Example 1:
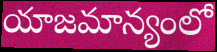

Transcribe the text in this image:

యాజమాన్యంలో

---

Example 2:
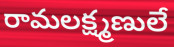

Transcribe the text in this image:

రామలక్ష్మణులే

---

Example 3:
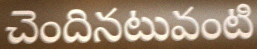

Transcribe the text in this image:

చెందినటువంటి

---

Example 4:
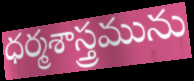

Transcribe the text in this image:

ధర్మశాస్త్రమును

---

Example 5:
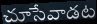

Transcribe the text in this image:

చూసేవాడట